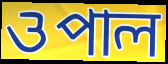
ওপাল